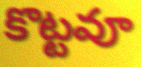
కొట్టవూ